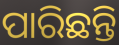
ପାରିଛନ୍ତି